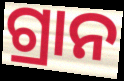
ଗ୍ରାନ